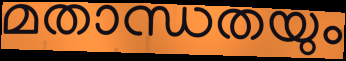
മതാന്ധതയും